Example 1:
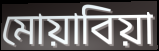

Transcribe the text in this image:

মোয়াবিয়া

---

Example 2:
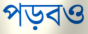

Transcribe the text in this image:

পড়বও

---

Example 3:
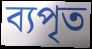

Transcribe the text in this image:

ব্যপৃত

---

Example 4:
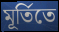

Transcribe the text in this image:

মূর্তিতে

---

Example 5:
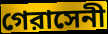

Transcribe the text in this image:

গেরাসেনী